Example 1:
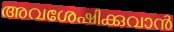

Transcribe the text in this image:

അവശേഷിക്കുവാൻ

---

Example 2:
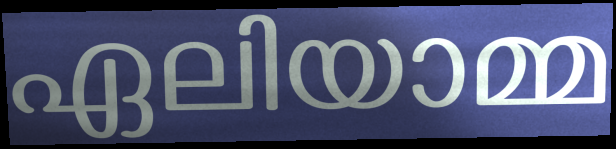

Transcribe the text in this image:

ഏലിയാമ്മ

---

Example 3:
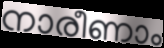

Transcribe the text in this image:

നാരീണാം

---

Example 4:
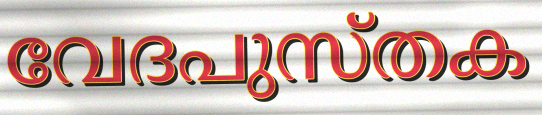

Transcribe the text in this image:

വേദപുസ്തക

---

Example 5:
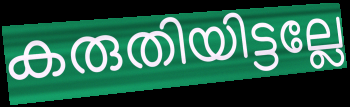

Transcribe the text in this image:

കരുതിയിട്ടല്ലേ